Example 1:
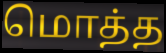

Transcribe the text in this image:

மொத்த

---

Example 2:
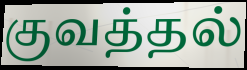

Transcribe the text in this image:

குவத்தல்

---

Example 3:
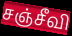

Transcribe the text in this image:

சஞ்சீவி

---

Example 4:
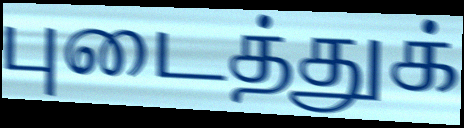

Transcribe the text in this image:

புடைத்துக்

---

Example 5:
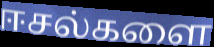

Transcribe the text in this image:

ஈசல்களை